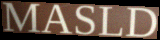
MASLD